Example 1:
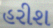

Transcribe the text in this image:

હરીશ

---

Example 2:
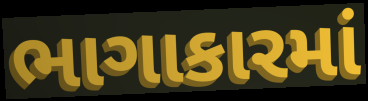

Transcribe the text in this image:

ભાગાકારમાં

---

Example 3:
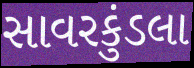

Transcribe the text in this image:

સાવરકુંડલા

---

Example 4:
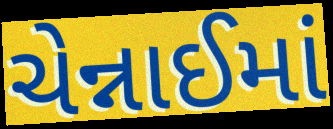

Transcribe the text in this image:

ચેન્નાઈમાં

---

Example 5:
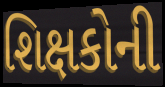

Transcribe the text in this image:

શિક્ષકોની